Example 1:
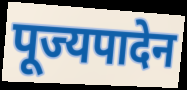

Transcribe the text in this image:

पूज्यपादेन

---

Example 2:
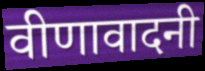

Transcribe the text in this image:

वीणावादनी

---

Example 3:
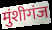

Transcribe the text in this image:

मुंशीगंज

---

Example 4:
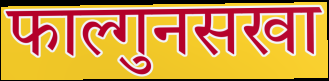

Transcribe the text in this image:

फाल्गुनसखा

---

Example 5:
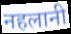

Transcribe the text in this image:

नहलानी